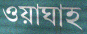
ওয়াঘাহ